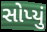
સોપ્યું